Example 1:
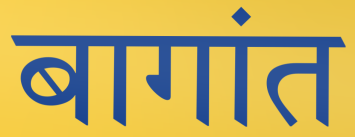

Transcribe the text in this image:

बागांत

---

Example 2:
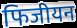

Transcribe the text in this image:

फिजीयन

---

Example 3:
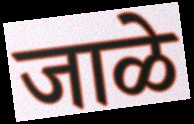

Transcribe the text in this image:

जाळे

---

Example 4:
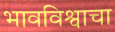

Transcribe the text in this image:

भावविश्वाचा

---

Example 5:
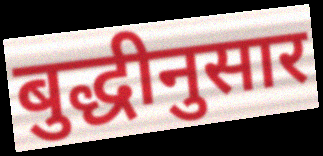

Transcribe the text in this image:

बुद्धीनुसार